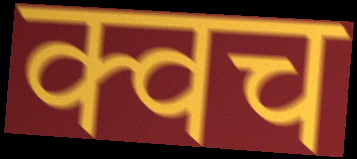
क्वच